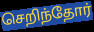
செறிந்தோர்